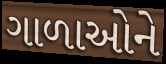
ગાળાઓને